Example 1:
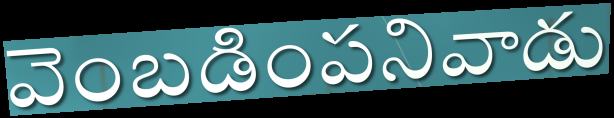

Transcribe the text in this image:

వెంబడింపనివాడు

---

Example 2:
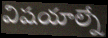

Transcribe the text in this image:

విషయాల్నే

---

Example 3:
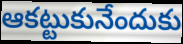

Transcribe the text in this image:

ఆకట్టుకునేందుకు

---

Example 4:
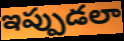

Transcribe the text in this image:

ఇప్పుడలా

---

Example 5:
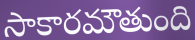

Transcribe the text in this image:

సాకారమౌతుంది